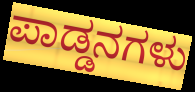
ಪಾಡ್ಡನಗಳು